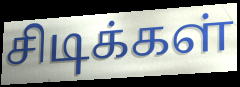
சிடிக்கள்